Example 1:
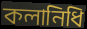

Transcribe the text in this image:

কলানিধি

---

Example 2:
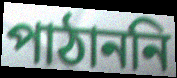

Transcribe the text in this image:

পাঠাননি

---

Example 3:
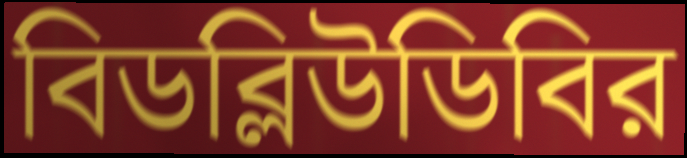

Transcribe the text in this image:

বিডব্লিউডিবির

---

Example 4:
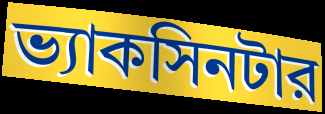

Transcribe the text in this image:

ভ্যাকসিনটার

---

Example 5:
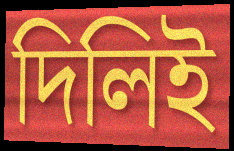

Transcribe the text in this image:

দিলিই